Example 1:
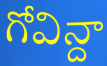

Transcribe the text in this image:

గోవిన్దా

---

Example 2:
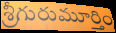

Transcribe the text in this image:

శ్రీగురుమూర్తిం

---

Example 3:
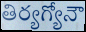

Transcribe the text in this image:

తిర్యగ్యోనౌ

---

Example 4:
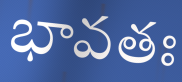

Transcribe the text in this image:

భావతః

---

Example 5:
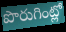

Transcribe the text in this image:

పొరుగింట్లో